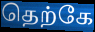
தெற்கே